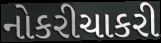
નોકરીચાકરી